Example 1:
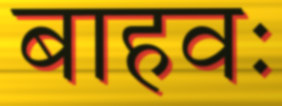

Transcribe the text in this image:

बाहवः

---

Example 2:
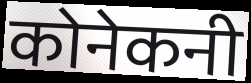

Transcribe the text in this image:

कोनेकनी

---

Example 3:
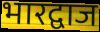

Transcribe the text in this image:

भारद्वाज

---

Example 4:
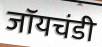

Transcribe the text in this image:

जॉयचंडी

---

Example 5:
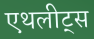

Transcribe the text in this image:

एथलीट्स